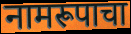
नामरूपाचा